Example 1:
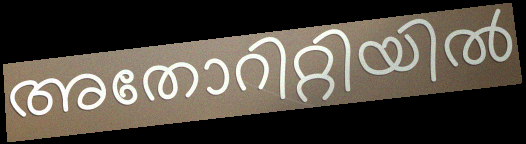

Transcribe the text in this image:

അതോറിറ്റിയിൽ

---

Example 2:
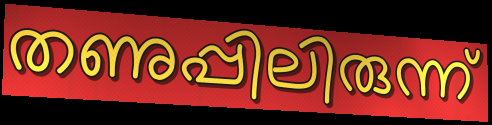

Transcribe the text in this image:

തണുപ്പിലിരുന്ന്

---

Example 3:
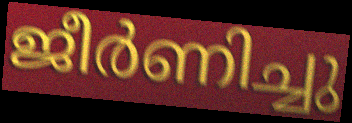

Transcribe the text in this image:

ജീർണിച്ചു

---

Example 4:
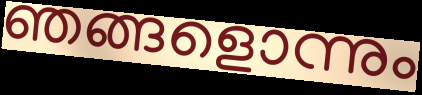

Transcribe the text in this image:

ഞങ്ങളൊന്നും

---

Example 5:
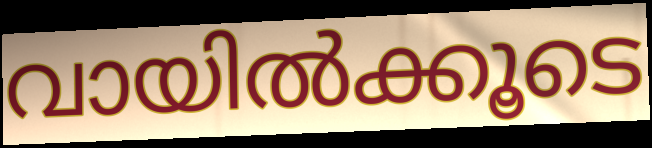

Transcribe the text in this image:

വായിൽക്കൂടെ